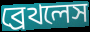
ব্রেথলেস